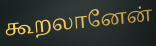
கூறலானேன்